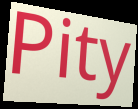
Pity